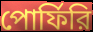
পোর্ফিরি